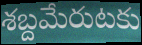
శబ్దమేరుటకు